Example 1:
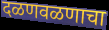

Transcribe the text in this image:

दळणवळणाचा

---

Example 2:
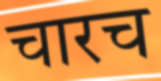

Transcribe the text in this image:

चारच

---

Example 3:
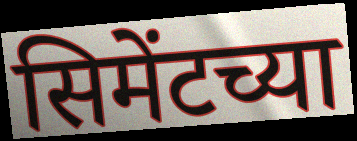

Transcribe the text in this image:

सिमेंटच्या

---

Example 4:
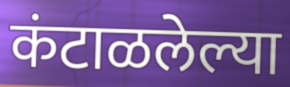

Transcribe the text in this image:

कंटाळलेल्या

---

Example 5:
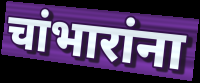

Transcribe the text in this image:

चांभारांना